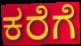
ಕರೆಗೆ